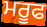
ਮਰੂਫ